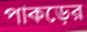
পাকড়ের